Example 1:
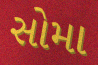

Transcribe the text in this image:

સોમા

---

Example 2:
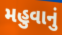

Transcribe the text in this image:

મહુવાનું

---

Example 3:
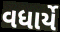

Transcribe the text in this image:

વધાર્યે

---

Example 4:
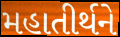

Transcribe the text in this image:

મહાતીર્થને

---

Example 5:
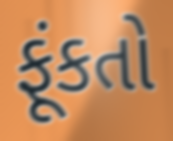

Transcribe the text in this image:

ફૂંકતો